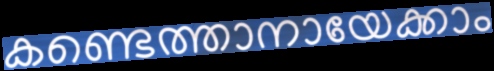
കണ്ടെത്താനായേക്കാം